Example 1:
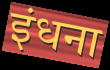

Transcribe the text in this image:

इंधना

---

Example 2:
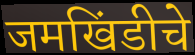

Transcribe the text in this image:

जमखिंडीचे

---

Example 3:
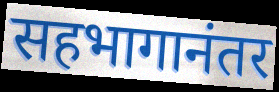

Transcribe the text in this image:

सहभागानंतर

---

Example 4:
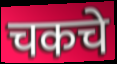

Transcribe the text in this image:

चकचे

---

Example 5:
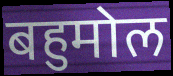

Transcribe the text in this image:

बहुमोल